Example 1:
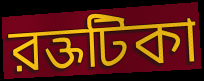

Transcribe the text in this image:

রক্তটিকা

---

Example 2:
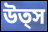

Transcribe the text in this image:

উত্স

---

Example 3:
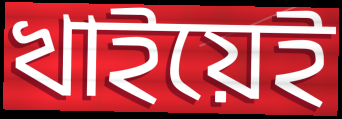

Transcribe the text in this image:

খাইয়েই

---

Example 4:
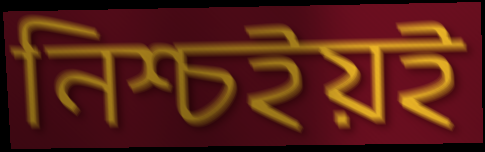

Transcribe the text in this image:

নিশ্চইয়ই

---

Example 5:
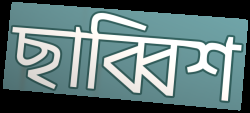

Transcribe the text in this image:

ছাব্বিশ